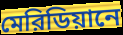
মেরিডিয়ানে